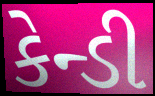
કેન્ડી